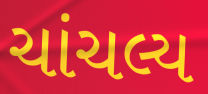
ચાંચલ્ય